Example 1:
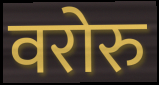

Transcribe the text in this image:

वरोरु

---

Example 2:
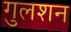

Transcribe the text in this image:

गुलशन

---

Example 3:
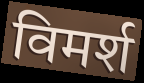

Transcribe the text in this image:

विमर्श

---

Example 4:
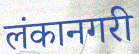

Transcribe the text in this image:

लंकानगरी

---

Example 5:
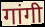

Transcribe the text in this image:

गांगी